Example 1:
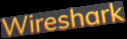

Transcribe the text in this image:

Wireshark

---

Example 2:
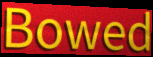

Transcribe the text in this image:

Bowed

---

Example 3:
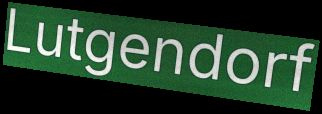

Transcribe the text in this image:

Lutgendorf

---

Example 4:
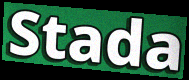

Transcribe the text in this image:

Stada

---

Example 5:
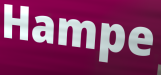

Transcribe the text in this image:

Hampe